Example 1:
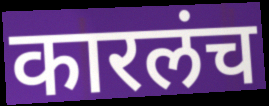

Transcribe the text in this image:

कारलंच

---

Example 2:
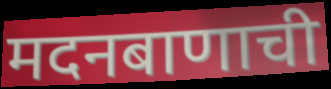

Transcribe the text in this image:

मदनबाणाची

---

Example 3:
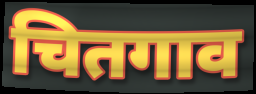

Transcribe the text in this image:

चितगाव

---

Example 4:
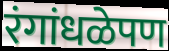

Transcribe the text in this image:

रंगांधळेपण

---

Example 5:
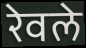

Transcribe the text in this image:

रेवले